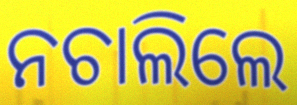
ନଚାଲିଲେ